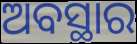
ଅବସ୍ଥାର